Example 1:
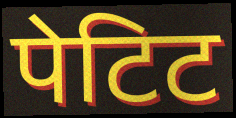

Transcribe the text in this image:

पेटिट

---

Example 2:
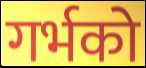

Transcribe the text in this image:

गर्भको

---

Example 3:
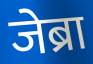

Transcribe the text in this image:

जेब्रा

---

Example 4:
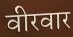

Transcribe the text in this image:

वीरवार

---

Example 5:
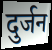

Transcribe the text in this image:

दुर्जन